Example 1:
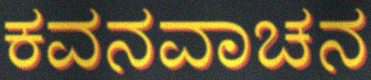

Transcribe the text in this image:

ಕವನವಾಚನ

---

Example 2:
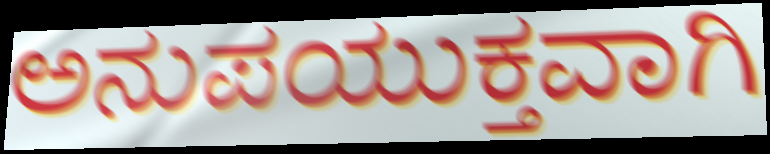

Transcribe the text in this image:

ಅನುಪಯುಕ್ತವಾಗಿ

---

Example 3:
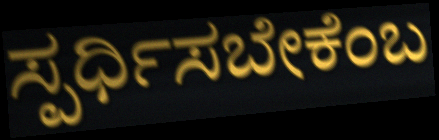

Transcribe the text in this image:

ಸ್ಪರ್ಧಿಸಬೇಕೆಂಬ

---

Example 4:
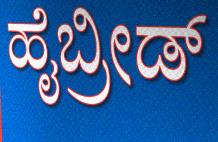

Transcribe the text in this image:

ಹೈಬ್ರೀಡ್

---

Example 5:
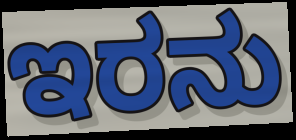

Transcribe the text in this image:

ಇರನು